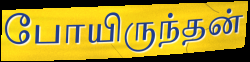
போயிருந்தன்